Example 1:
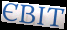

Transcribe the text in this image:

EBIT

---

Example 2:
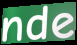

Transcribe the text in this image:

nde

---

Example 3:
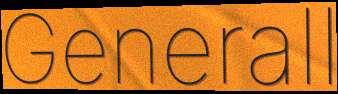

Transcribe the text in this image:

Generall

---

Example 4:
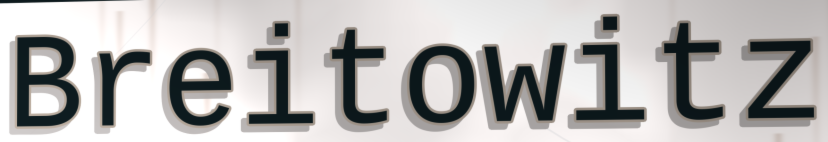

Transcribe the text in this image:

Breitowitz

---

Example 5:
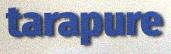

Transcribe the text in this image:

tarapure